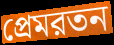
প্রেমরতন